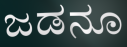
ಜಡನೂ